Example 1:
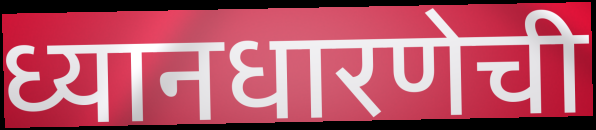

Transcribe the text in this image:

ध्यानधारणेची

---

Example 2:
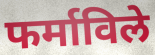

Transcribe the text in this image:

फर्माविले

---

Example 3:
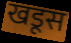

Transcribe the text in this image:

खडूस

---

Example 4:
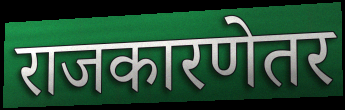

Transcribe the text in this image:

राजकारणेतर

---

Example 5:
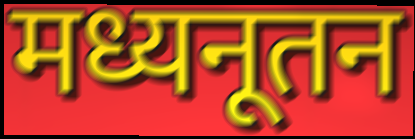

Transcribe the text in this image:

मध्यनूतन